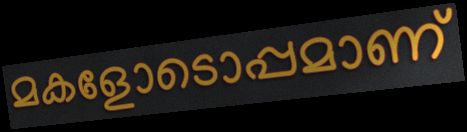
മകളോടൊപ്പമാണ്